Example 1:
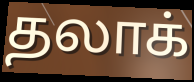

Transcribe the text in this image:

தலாக்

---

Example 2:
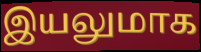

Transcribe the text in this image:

இயலுமாக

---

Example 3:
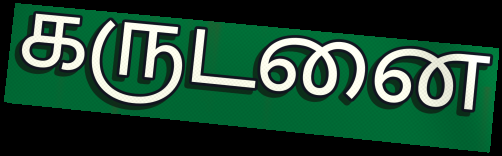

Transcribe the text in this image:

கருடனை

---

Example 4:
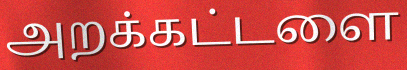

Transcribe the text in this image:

அறக்கட்டளை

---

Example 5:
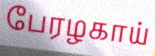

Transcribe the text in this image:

பேரழகாய்